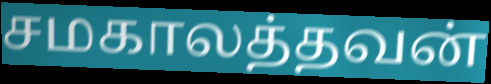
சமகாலத்தவன்